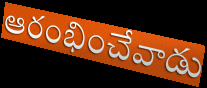
ఆరంభించేవాడు